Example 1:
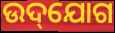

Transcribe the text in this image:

ଉଦ୍‌ଯୋଗ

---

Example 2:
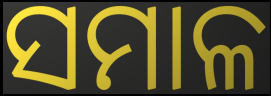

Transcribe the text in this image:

ସମାଳ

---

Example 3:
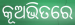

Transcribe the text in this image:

କୂଅଭିତରେ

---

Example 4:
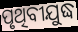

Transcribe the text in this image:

ପୃଥିବୀଯୁଦ୍ଧ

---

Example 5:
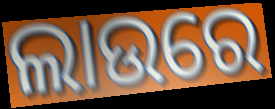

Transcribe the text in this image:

ଲାଉରେ